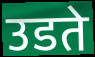
उडते